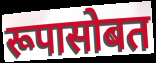
रूपासोबत